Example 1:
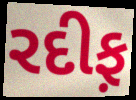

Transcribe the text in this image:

રદીફ઼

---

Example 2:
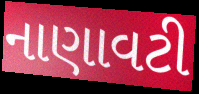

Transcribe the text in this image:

નાણાવટી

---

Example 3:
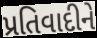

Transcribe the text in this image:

પ્રતિવાદીને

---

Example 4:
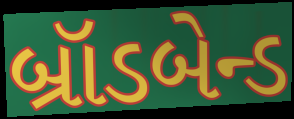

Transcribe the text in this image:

બ્રૉડબેન્ડ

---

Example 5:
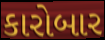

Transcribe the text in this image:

કારોબાર